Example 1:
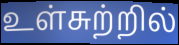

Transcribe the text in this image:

உள்சுற்றில்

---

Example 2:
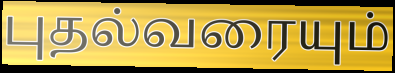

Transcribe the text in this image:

புதல்வரையும்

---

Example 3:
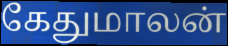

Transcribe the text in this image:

கேதுமாலன்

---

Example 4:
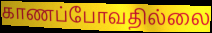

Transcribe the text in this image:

காணப்போவதில்லை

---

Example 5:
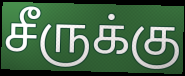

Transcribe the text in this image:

சீருக்கு